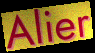
Alier